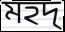
মহদ্